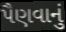
પૈણવાનું